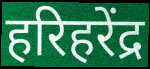
हरिहरेंद्र